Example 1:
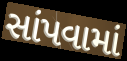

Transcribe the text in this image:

સાંપવામાં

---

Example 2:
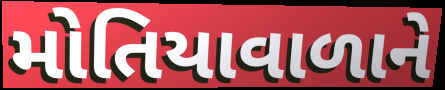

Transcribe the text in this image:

મોતિયાવાળાને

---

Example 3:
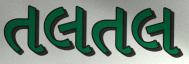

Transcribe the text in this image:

તલતલ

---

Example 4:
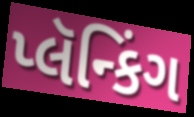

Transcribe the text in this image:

પ્લૅન્કિંગ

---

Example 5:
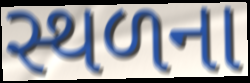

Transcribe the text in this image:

સ્થળના